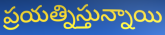
ప్రయత్నిస్తున్నాయి